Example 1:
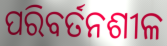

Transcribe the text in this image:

ପରିବର୍ତନଶୀଳ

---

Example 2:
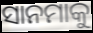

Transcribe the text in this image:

ସାନମାକୁ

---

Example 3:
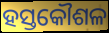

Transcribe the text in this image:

ହସ୍ତକୌଶଳ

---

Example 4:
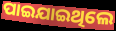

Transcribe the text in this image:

ପାଇଯାଇଥିଲେ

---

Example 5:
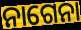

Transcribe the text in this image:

ନାଗେନା